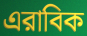
এরাবিক